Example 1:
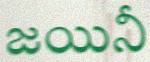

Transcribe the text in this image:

జయినీ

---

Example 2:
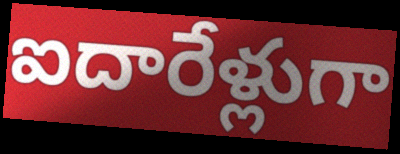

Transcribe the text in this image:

ఐదారేళ్లుగా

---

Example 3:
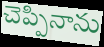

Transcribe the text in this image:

చెప్పినాను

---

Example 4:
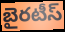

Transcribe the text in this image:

బైరటీస్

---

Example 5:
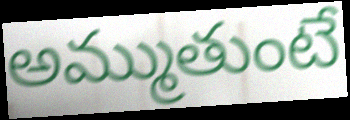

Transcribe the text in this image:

అమ్ముతుంటే